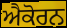
ਐਕੋਰਨ